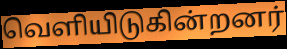
வெளியிடுகின்றனர்